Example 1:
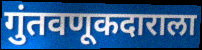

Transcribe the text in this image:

गुंतवणूकदाराला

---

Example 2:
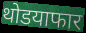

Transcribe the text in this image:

थोडयाफार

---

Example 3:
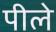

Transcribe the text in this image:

पीले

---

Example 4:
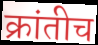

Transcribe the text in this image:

क्रांतीच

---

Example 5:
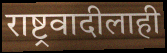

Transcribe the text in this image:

राष्ट्रवादीलाही